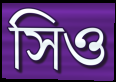
সিও